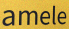
amele